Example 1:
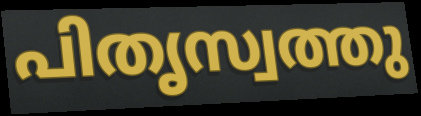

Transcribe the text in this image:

പിതൃസ്വത്തു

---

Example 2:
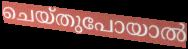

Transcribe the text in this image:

ചെയ്തുപോയാൽ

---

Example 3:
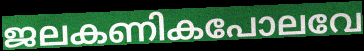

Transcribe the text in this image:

ജലകണികപോലവേ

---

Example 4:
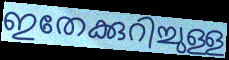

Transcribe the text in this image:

ഇതേക്കുറിച്ചുള്ള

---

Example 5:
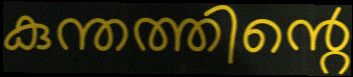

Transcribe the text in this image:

കുന്തത്തിന്റെ